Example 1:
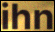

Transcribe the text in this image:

ihn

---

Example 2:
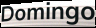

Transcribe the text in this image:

Domingo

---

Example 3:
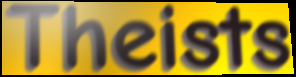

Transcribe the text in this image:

Theists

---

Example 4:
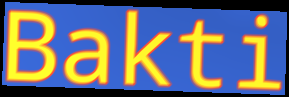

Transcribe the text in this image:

Bakti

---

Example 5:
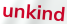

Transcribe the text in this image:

unkind